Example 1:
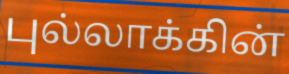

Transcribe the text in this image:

புல்லாக்கின்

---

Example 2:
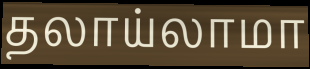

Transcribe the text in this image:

தலாய்லாமா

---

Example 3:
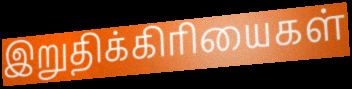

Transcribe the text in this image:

இறுதிக்கிரியைகள்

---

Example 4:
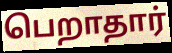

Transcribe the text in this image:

பெறாதார்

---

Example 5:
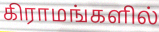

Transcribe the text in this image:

கிராமங்களில்